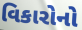
વિકારોનો